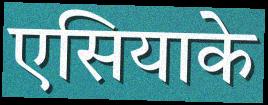
एसियाके